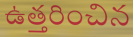
ఉత్తరించిన